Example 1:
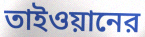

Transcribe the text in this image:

তাইওয়ানের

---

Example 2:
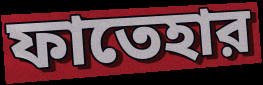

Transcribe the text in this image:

ফাতেহার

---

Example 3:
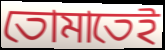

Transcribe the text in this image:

তোমাতেই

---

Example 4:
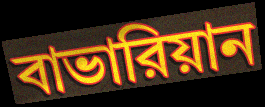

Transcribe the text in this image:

বাভারিয়ান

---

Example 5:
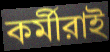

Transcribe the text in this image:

কর্মীরাই